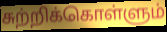
சுற்றிக்கொள்ளும்